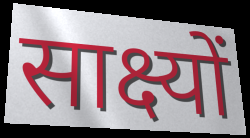
साक्ष्यों